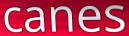
canes